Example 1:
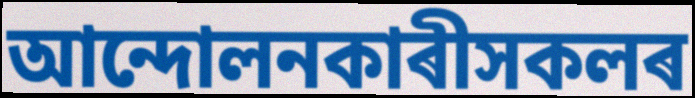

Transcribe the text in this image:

আন্দোলনকাৰীসকলৰ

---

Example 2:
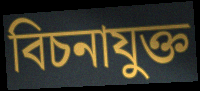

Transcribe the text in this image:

বিচনাযুক্ত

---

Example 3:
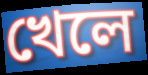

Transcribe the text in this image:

খেলে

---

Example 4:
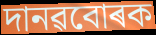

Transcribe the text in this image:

দানৱবোৰক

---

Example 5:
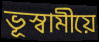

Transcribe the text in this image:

ভূস্বামীয়ে